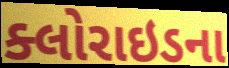
ક્લોરાઇડના